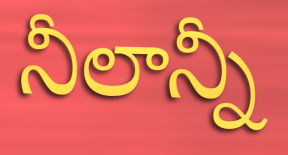
నీలాన్నీ